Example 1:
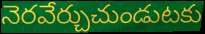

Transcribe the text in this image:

నెరవేర్చుచుండుటకు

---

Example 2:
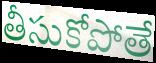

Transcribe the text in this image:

తీసుకోపోతే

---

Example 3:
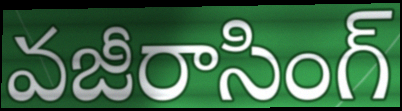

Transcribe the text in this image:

వజీరాసింగ్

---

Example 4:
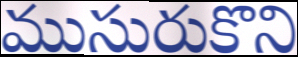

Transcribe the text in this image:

ముసురుకొని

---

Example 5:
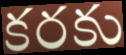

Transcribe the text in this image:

కరకు